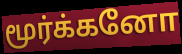
மூர்க்கனோ